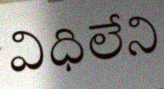
విధిలేని